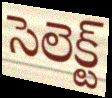
సెలెక్ట్